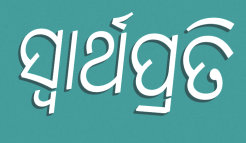
ସ୍ୱାର୍ଥପ୍ରତି